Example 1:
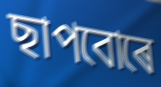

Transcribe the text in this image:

ছাপবোৰে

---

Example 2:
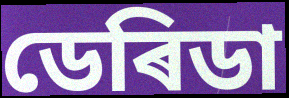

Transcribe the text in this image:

ডেৰিডা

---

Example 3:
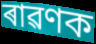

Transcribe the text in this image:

ৰাৱণক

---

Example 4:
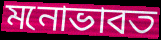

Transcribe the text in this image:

মনোভাবত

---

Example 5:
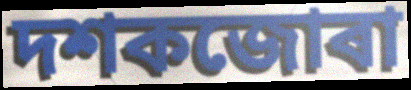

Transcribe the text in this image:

দশকজোৰা